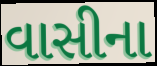
વાસીના